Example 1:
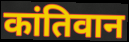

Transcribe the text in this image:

कांतिवान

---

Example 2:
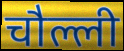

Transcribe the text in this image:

चौल्ली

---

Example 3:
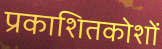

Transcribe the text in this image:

प्रकाशितकोशों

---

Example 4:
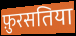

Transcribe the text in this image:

फ़ुरसतिया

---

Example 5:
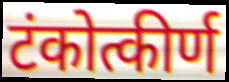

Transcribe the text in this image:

टंकोत्कीर्ण